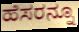
ಹೆಸರನ್ನೂ